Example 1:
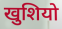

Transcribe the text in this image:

खुशियो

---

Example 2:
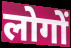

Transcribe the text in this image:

लोगों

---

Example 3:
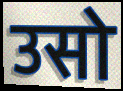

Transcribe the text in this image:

उसो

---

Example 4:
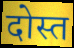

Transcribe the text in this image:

दोस्त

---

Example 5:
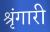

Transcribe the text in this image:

श्रृंगारी